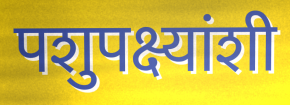
पशुपक्ष्यांशी